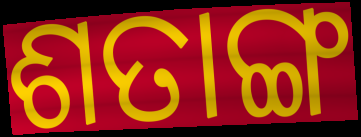
ଶତାଙ୍ଗ